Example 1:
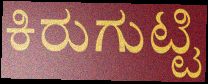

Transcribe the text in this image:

ಕಿರುಗುಟ್ಟಿ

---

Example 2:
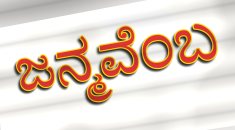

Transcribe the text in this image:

ಜನ್ಮವೆಂಬ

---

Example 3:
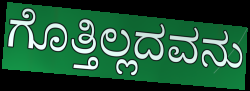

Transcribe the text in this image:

ಗೊತ್ತಿಲ್ಲದವನು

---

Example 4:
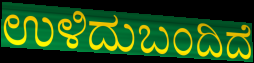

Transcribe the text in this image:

ಉಳಿದುಬಂದಿದೆ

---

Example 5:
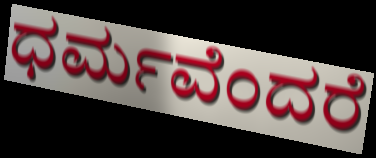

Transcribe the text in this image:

ಧರ್ಮವೆಂದರೆ